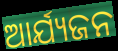
ଆର୍ଯ୍ୟଜନ